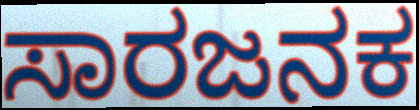
ಸಾರಜನಕ